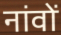
नांवों